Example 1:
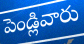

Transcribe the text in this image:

పెండ్లివారు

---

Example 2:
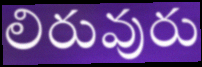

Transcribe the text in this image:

లిరువురు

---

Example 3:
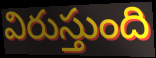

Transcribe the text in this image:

విరుస్తుంది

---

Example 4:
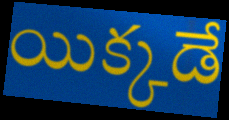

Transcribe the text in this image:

యిక్కడే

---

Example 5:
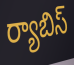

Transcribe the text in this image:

ర్యాబిస్